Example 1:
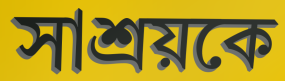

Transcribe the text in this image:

সাশ্রয়কে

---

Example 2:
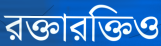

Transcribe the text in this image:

রক্তারক্তিও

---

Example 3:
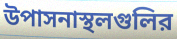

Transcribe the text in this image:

উপাসনাস্থলগুলির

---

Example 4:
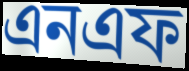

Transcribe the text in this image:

এনএফ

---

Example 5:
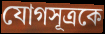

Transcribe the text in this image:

যোগসূত্রকে